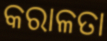
କରାଳତା